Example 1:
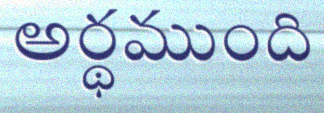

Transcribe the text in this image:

అర్థముంది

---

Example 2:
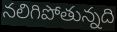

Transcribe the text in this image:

నలిగిపోతున్నది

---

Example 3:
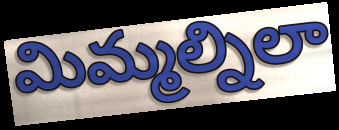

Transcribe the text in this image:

మిమ్మల్నిలా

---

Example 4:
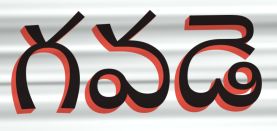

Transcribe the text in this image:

గవడె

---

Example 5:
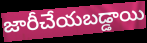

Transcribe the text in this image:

జారీచేయబడ్డాయి